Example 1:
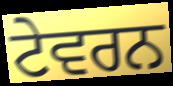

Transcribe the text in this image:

ਟੇਵਰਨ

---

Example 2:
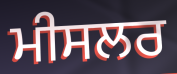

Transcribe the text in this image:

ਮੀਸਲਰ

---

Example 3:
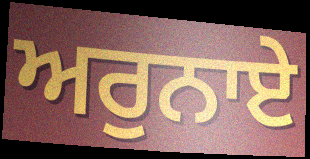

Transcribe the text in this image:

ਅਰੁਨਾਏ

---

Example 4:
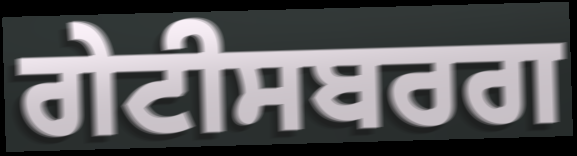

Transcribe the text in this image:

ਗੇਟੀਸਬਰਗ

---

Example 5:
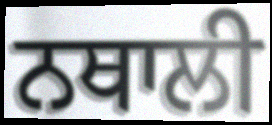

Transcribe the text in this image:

ਨਥਾਲੀ